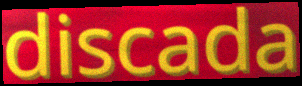
discada